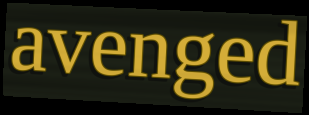
avenged